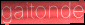
gaitonde